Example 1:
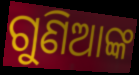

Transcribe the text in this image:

ଗୁଣିଆଙ୍କ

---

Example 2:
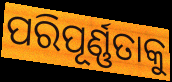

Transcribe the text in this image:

ପରିପୂର୍ଣ୍ଣତାକୁ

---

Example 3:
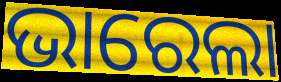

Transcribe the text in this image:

ଭାରେଲା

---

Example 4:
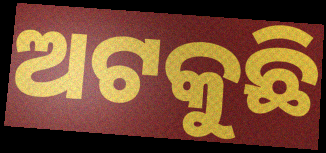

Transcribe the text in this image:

ଅଟକୁଛି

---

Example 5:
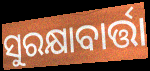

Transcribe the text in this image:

ସୁରକ୍ଷାବାର୍ତ୍ତା